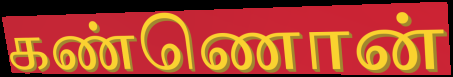
கண்ணொன்